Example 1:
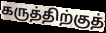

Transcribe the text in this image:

கருத்திற்குத்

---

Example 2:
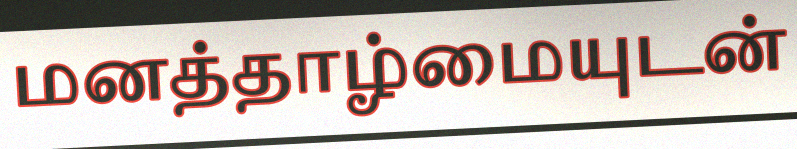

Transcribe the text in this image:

மனத்தாழ்மையுடன்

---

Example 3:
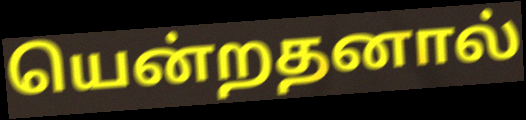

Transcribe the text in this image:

யென்றதனால்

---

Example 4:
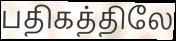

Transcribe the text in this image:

பதிகத்திலே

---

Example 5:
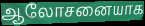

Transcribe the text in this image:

ஆலோசனையாக